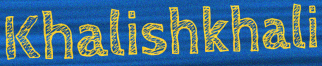
Khalishkhali